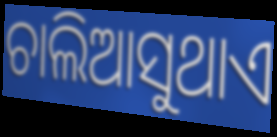
ଚାଲିଆସୁଥାଏ